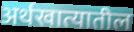
अर्थखात्यातील